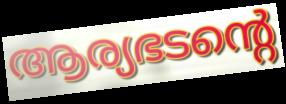
ആര്യഭടന്റെ